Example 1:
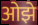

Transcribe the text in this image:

ओझे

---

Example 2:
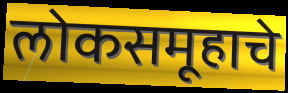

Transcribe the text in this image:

लोकसमूहाचे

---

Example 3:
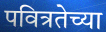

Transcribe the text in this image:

पवित्रतेच्या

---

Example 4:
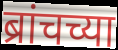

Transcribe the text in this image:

ब्रांचच्या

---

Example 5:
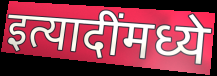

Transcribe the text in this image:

इत्यादींमध्ये